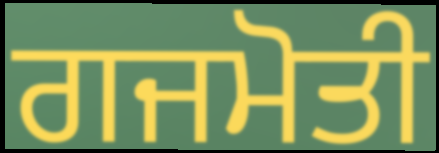
ਗਜਮੋਤੀ